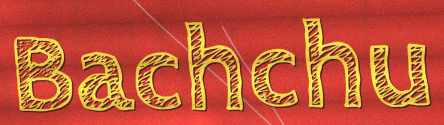
Bachchu